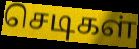
செடிகள்